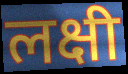
लक्षी